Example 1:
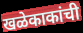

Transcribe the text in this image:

खळेकाकांची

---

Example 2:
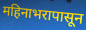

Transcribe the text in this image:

महिनाभरापासून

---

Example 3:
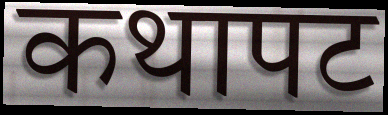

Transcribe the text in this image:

कथापट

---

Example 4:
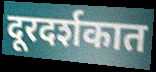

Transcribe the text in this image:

दूरदर्शकात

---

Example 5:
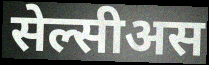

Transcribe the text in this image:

सेल्सीअस